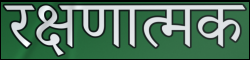
रक्षणात्मक